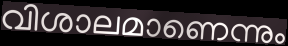
വിശാലമാണെന്നും